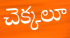
చెక్కలూ